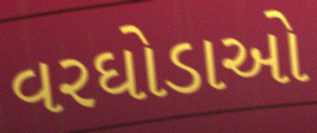
વરઘોડાઓ